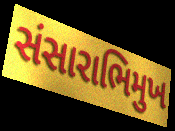
સંસારાભિમુખ